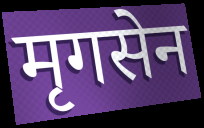
मृगसेन